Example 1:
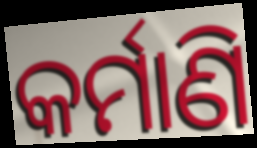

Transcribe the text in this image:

କର୍ମାଣି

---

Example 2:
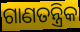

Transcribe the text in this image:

ଗାଣତନ୍ତ୍ରିକ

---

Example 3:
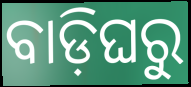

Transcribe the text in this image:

ବାଡ଼ିଘରୁ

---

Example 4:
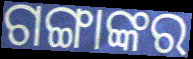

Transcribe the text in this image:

ଗଙ୍ଗାଙ୍କର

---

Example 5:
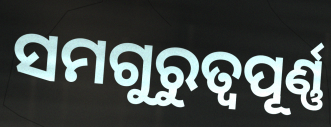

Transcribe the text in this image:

ସମଗୁରୁତ୍ଵପୂର୍ଣ୍ଣ